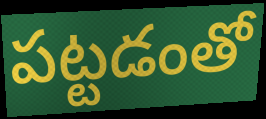
పట్టడంతో